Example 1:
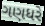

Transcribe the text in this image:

ગણધરે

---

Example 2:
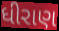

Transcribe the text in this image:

ધીરાણ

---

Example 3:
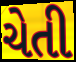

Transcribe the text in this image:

ચેતી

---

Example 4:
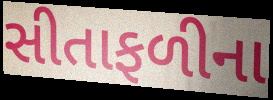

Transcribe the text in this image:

સીતાફળીના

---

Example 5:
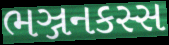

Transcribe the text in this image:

ભઞ્જનકસ્સ